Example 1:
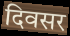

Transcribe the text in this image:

दिवसर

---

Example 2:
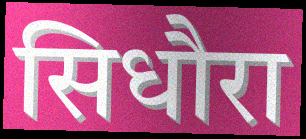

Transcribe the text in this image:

सिधौरा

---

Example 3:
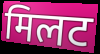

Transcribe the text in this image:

मिलट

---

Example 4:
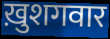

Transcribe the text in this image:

ख़ुशगवार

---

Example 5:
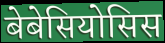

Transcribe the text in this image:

बेबेसियोसिस